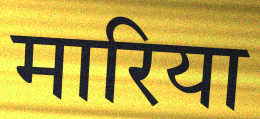
मारिया